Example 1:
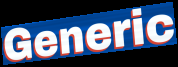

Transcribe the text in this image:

Generic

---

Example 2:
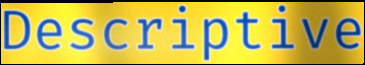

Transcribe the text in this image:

Descriptive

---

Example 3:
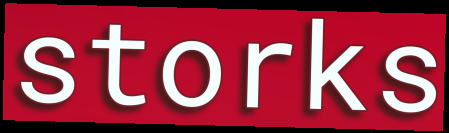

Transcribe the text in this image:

storks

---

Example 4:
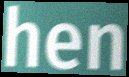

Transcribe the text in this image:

hen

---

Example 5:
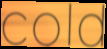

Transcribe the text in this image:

cold